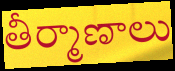
తీర్మాణాలు